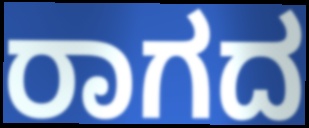
ರಾಗದ